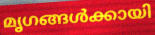
മൃഗങ്ങൾക്കായി